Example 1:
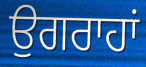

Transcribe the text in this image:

ਉਗਰਾਹਾਂ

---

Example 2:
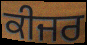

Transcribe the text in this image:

ਕੀਜਰ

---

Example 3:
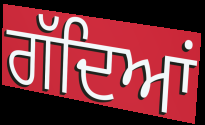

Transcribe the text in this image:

ਗੱਦਿਆਂ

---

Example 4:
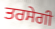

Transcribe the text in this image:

ਤਰਸੇਗੀ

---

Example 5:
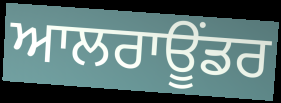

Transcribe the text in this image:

ਆਲਰਾਊਂਡਰ